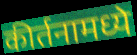
कीर्तनामध्ये